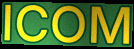
ICOM